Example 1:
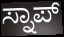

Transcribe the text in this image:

ಸ್ನಾಪ್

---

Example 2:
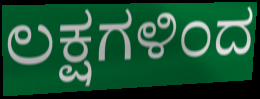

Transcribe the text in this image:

ಲಕ್ಷಗಳಿಂದ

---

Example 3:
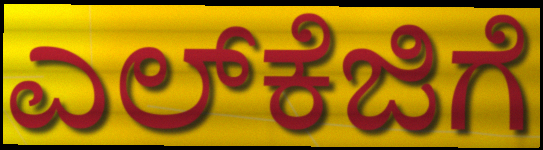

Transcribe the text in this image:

ಎಲ್‌ಕೆಜಿಗೆ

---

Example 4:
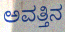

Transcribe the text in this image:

ಅವತ್ತಿನ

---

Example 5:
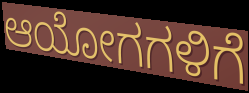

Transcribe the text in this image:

ಆಯೋಗಗಳಿಗೆ